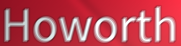
Howorth